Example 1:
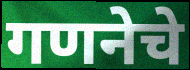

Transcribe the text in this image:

गणनेचे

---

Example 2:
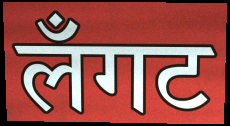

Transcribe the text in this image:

लँगट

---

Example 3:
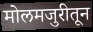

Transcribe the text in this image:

मोलमजुरीतून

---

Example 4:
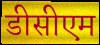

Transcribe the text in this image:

डीसीएम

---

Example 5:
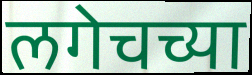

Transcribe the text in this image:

लगेचच्या